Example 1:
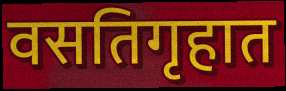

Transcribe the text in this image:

वसतिगृहात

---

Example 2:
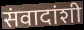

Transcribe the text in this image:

संवादांशी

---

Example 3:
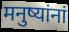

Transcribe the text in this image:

मनुष्यांनां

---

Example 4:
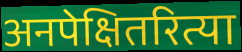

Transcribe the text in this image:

अनपेक्षितरित्या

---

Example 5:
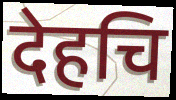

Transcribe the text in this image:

देहचि